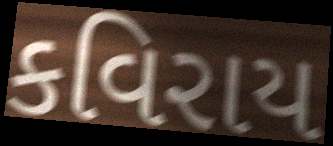
કવિરાય